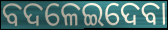
ବଦଳେଇଦେବା